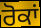
ਰੋਕਾਂ